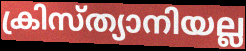
ക്രിസ്ത്യാനിയല്ല